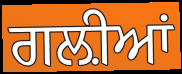
ਗਲ਼ੀਆਂ